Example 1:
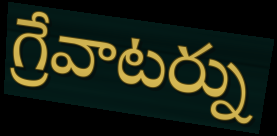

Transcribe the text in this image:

గ్రేవాటర్ను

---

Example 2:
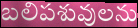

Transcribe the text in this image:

బలిపశువులను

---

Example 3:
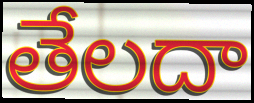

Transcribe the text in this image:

తేలదా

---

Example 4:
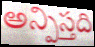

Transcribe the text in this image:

అన్పిస్తది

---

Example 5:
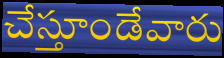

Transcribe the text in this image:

చేస్తూండేవారు